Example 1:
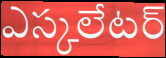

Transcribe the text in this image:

ఎస్కలేటర్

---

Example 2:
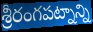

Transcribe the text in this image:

శ్రీరంగపట్నాన్ని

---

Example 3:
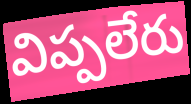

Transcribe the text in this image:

విప్పలేరు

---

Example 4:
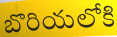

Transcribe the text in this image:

బొరియలోకి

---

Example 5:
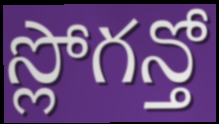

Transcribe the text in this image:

స్లోగన్తో